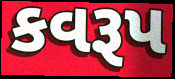
કવરૂપ